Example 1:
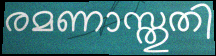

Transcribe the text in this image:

രമണാസ്തുതി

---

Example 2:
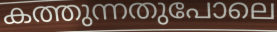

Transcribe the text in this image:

കത്തുന്നതുപോലെ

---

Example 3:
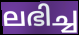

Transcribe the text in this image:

ലഭിച്ച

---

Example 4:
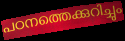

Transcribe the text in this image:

പഠനത്തെക്കുറിച്ചും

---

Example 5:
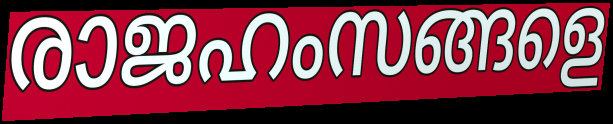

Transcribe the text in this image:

രാജഹംസങ്ങളെ